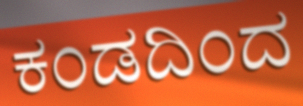
ಕಂಡದಿಂದ